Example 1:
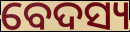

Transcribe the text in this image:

ବେଦସ୍ୟ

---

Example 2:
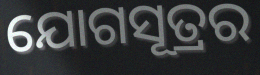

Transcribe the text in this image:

ଯୋଗସୂତ୍ରର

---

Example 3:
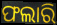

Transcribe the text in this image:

ଫଲାରି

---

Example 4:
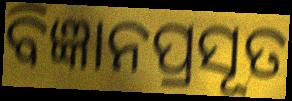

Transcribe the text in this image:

ବିଜ୍ଞାନପ୍ରସୂତ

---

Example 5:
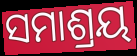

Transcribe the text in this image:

ସମାଶ୍ରୟ